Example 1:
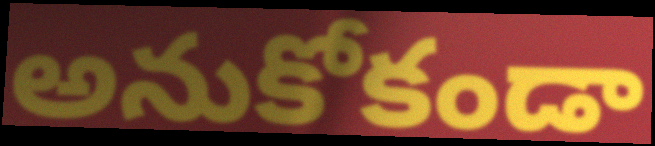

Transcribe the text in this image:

అనుకోకండా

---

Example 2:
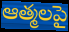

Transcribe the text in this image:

ఆత్మలపై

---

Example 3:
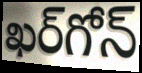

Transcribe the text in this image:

ఖర్‌గోన్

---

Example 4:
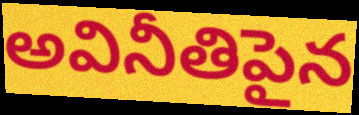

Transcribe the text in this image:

అవినీతిపైన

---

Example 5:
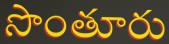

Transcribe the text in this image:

సొంతూరు